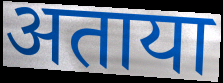
अताया